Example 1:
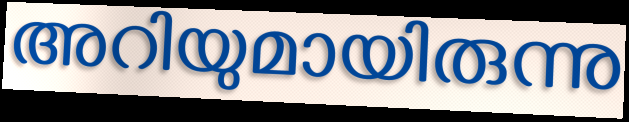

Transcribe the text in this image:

അറിയുമായിരുന്നു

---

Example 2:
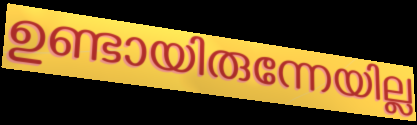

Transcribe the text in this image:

ഉണ്ടായിരുന്നേയില്ല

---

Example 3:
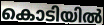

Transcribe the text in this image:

കൊടിയിൽ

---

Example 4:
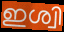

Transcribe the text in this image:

ഇശ്വി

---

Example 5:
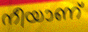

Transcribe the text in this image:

നീയാണ്